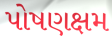
પોષણક્ષમ